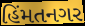
હિંમતનગર